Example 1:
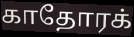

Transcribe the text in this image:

காதோரக்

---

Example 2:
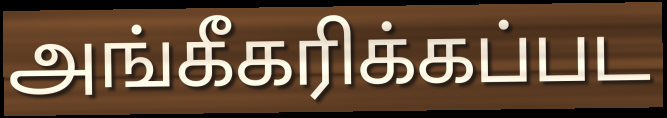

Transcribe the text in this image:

அங்கீகரிக்கப்பட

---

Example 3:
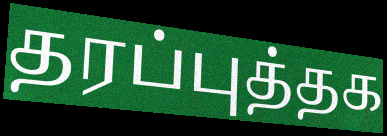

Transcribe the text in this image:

தரப்புத்தக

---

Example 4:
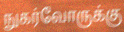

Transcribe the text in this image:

நுகர்வோருக்கு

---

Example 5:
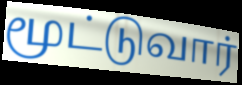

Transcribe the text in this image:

மூட்டுவார்